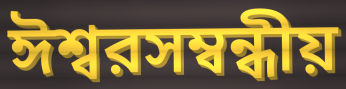
ঈশ্বরসম্বন্ধীয়